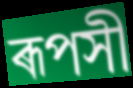
ৰূপসী